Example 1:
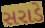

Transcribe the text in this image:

સરાડે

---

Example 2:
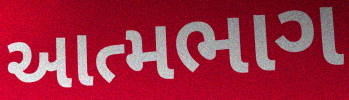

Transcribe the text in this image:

આત્મભાગ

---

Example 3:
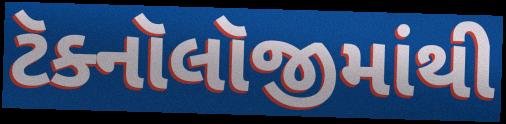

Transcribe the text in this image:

ટૅક્નૉલૉજીમાંથી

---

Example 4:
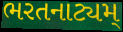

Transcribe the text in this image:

ભરતનાટ્યમ્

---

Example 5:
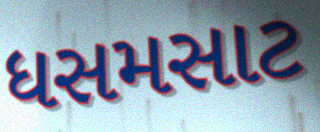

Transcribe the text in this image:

ધસમસાટ